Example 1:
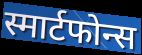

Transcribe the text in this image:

स्मार्टफोन्स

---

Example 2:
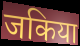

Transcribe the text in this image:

जकिया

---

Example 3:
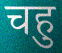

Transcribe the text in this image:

चहु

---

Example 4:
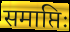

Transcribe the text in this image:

समाप्तिः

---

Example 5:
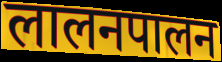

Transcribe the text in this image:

लालनपालन